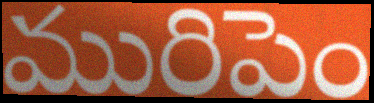
మురిపెం